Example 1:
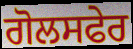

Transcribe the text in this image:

ਗੋਲਸਫੇਰ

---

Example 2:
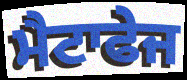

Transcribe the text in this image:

ਮੈਟਾਫੇਜ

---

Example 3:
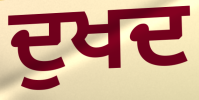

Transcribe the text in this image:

ਦੁਖਦ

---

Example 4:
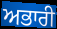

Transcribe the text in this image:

ਅਭਾਰੀ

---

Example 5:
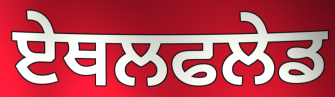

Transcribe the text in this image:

ਏਥਲਫਲੇਡ